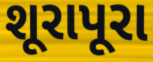
શૂરાપૂરા